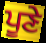
ਪੂਣੇ